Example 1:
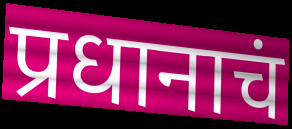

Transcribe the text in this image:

प्रधानाचं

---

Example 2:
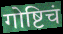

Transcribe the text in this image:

गोष्टिचं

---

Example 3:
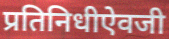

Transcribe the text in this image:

प्रतिनिधीऐवजी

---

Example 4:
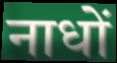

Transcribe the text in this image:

नाधों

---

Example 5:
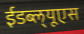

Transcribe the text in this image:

ईडब्ल्यूएस